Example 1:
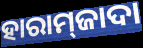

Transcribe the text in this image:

ହାରାମ୍‌ଜାଦା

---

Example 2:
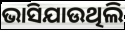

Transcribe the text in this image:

ଭାସିଯାଉଥିଲି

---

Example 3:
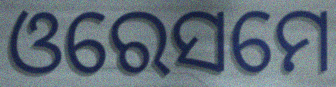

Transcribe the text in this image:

ଓରେସମେ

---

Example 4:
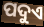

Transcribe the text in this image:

ପଦୁଏ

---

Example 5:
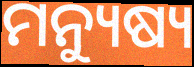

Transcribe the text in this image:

ମନ୍ୟୁଷ୍ୟ